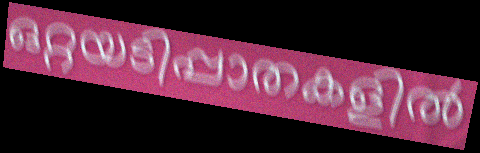
ഒറ്റയടിപ്പാതകളിൽ